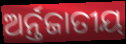
ଅର୍ନ୍ତଜାତୀୟ